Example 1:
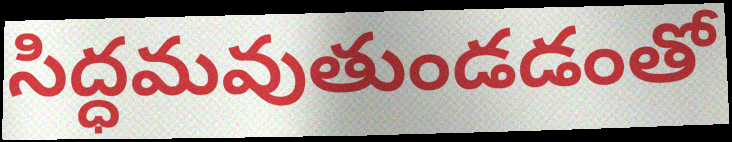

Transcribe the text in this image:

సిద్ధమవుతుండడంతో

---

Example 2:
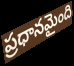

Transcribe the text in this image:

ప్రధానమైంది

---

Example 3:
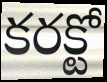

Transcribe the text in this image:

కరక్టో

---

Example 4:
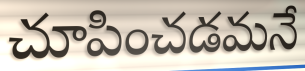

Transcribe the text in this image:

చూపించడమనే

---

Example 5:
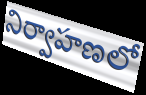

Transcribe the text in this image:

నిర్వాహణలో